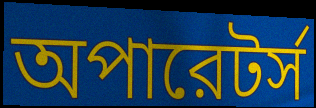
অপারেটর্স